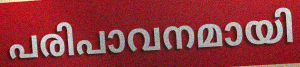
പരിപാവനമായി